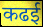
कढई